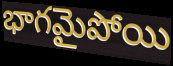
భాగమైపోయి